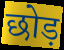
छोड़